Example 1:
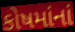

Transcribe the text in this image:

કોષમાંનાં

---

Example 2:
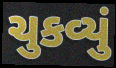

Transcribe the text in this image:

ચુકવ્યું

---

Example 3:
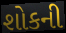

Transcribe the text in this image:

શોકની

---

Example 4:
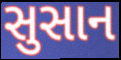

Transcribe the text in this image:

સુસાન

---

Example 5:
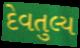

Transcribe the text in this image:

દેવતુલ્ય